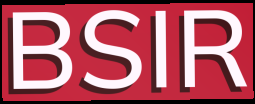
BSIR